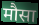
मौसा